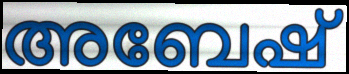
അബേഷ്